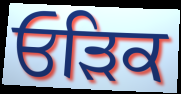
ਓੜਿਕ